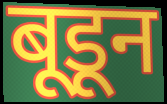
बूडून